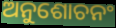
ଅନୁଶୋଚନଂ